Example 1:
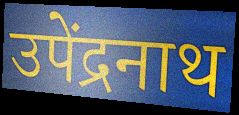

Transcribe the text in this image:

उपेंद्रनाथ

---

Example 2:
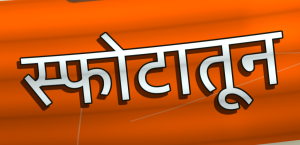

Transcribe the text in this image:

स्फोटातून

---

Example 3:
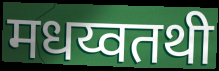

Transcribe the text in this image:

मधय्वतथी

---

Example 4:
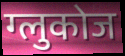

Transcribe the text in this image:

ग्लुकोज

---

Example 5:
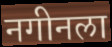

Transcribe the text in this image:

नगीनला